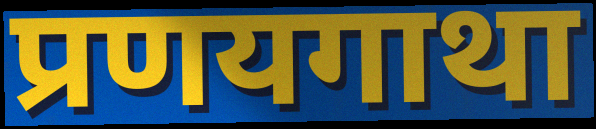
प्रणयगाथा